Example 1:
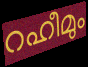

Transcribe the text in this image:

റഹീമും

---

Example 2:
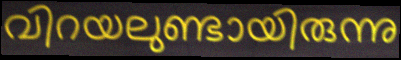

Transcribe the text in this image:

വിറയലുണ്ടായിരുന്നു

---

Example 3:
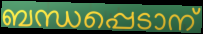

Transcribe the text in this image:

ബന്ധപ്പെടാന്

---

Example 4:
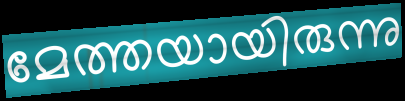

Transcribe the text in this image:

മേത്തയായിരുന്നു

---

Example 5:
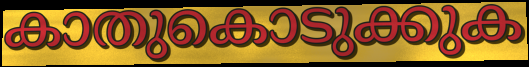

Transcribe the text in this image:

കാതുകൊടുക്കുക